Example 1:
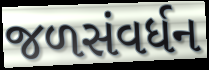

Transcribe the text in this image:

જળસંવર્ધન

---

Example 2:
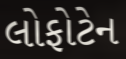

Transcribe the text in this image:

લોફોટેન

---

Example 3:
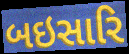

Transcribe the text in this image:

બઇસારિ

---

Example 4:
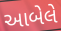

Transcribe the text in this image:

આબેલે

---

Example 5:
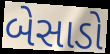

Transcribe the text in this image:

બેસાડો